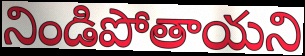
నిండిపోతాయని